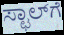
ಸ್ಟಾಲ್‌ಗೆ